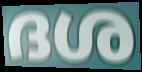
ദശ